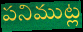
పనిముట్ల